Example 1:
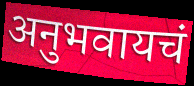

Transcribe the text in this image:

अनुभवायचं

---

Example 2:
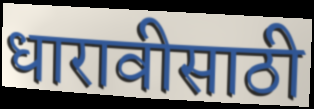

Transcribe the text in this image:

धारावीसाठी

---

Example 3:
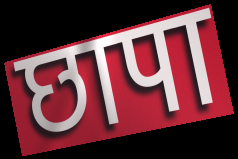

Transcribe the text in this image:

छापा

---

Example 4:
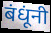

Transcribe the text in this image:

बंधूंनी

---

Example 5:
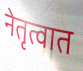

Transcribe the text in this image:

नेतृत्वात